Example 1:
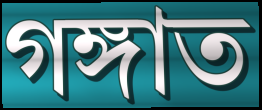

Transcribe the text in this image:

গঙ্গাত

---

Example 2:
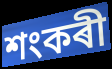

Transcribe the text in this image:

শংকৰী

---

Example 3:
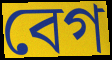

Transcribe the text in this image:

বেগ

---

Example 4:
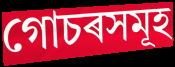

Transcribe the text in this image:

গোচৰসমূহ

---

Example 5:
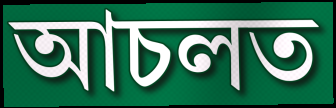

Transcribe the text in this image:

আচলত